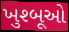
ખુશ્બૂઓ